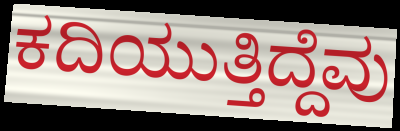
ಕದಿಯುತ್ತಿದ್ದೆವು